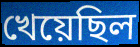
খেয়েছিল